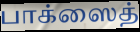
பாக்ஸைத்